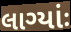
લાગ્યાંઃ